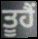
ਤੂਹੈਂ